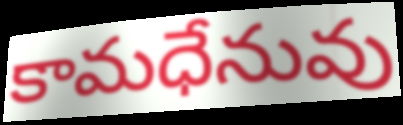
కామధేనువు